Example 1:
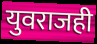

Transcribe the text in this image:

युवराजही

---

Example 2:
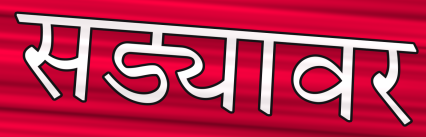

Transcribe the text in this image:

सड्यावर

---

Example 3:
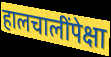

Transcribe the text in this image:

हालचालींपेक्षा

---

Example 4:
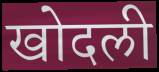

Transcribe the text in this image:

खोदली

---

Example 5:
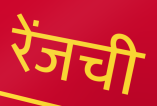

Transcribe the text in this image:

रेंजची